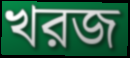
খরজ